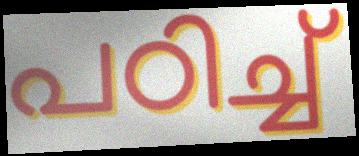
പഠിച്ച്